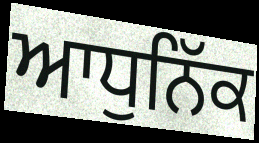
ਆਧੁਨਿੱਕ